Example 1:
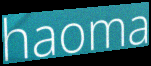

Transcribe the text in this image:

haoma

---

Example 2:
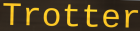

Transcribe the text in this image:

Trotter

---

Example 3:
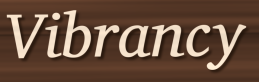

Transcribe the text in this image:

Vibrancy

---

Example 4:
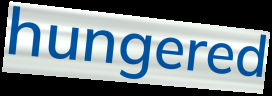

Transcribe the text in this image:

hungered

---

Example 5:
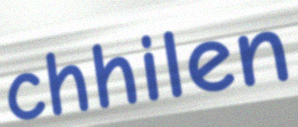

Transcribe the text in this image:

chhilen